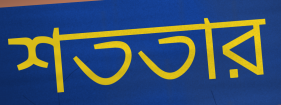
শততার